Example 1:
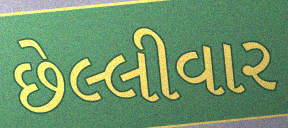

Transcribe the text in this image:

છેલ્લીવાર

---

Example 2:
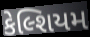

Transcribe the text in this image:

કેલ્શિયમ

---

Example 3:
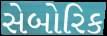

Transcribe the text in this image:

સેબોરિક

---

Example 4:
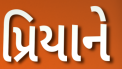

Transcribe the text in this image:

પ્રિયાને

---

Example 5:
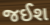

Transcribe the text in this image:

જઈશ